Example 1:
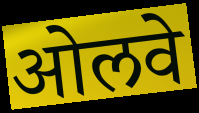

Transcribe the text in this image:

ओलवे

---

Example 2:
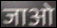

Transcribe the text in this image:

जाओ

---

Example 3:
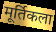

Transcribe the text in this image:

मूर्तिकला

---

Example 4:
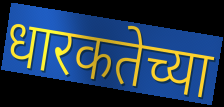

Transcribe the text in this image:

धारकतेच्या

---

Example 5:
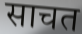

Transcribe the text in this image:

साचत